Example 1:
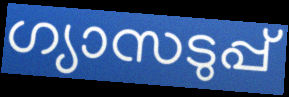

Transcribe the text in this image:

ഗ്യാസടുപ്പ്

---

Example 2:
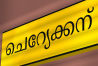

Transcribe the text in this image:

ചെറ്യേക്കന്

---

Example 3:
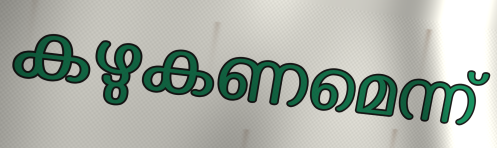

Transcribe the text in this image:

കഴുകണമെന്ന്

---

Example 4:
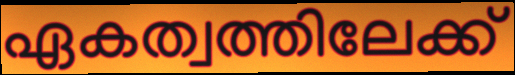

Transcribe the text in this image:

ഏകത്വത്തിലേക്ക്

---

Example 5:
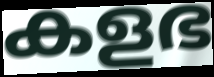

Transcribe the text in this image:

കളഭ